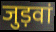
जुड़वां